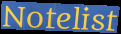
Notelist